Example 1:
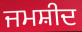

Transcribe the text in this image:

ਜਮਸ਼ੀਦ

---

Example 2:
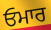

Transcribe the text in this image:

ਓਮਾਰ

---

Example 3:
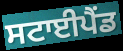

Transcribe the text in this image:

ਸਟਾਈਪੈਂਡ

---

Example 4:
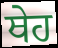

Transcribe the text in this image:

ਥੇਹ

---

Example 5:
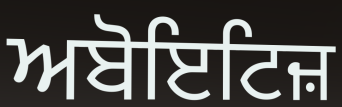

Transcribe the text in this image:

ਅਬੋਇਟਿਜ਼